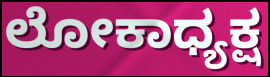
ಲೋಕಾಧ್ಯಕ್ಷ